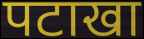
पटाखा